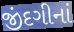
જીંદગીનાં